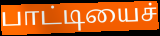
பாட்டியைச்